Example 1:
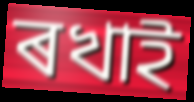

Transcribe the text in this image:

ৰখাই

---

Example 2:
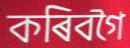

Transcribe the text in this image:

কৰিবগৈ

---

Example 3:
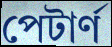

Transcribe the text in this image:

পেটাৰ্ণ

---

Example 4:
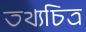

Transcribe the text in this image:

তথ্যচিত্ৰ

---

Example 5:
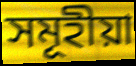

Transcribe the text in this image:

সমূহীয়া